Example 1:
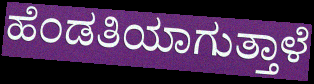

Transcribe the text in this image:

ಹೆಂಡತಿಯಾಗುತ್ತಾಳೆ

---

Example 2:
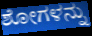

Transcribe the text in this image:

ಶೋಗಳನ್ನು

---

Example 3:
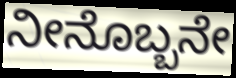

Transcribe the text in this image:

ನೀನೊಬ್ಬನೇ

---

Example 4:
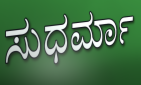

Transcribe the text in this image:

ಸುಧರ್ಮಾ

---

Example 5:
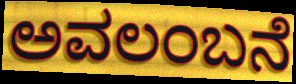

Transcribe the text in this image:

ಅವಲಂಬನೆ